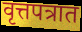
वृत्तपत्रात